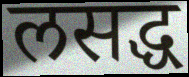
लसद्ध